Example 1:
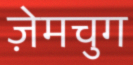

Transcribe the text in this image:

ज़ेमचुग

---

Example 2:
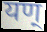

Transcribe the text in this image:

यण्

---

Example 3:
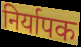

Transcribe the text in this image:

निर्यापक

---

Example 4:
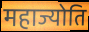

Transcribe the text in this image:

महाज्योति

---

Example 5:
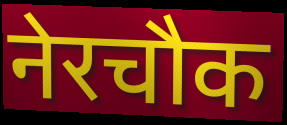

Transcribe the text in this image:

नेरचौक